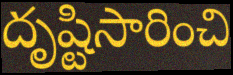
దృష్టిసారించి